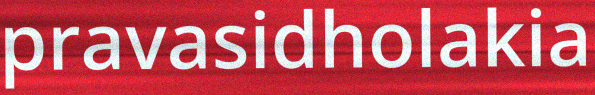
pravasidholakia